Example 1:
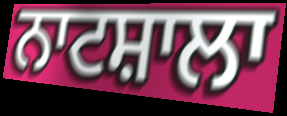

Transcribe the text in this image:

ਨਾਟਸ਼ਾਲਾ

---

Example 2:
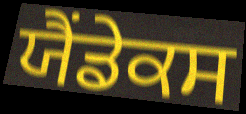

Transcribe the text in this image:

ਯੈਂਡੇਕਸ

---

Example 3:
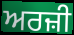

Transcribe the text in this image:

ਅਰਜ਼ੀ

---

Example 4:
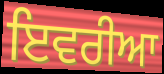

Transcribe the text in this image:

ਇਵਰੀਆ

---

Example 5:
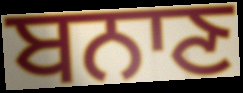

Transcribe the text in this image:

ਬਨਾਣ